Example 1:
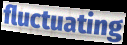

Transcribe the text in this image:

fluctuating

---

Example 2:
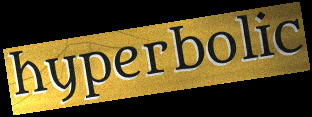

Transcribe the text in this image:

hyperbolic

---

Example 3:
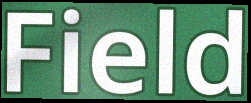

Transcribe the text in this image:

Field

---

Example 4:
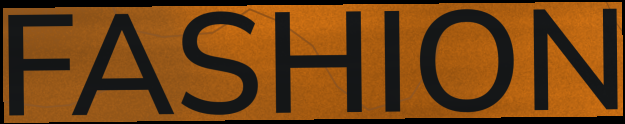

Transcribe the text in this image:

FASHION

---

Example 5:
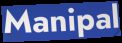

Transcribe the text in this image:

Manipal